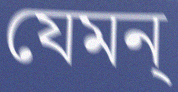
যেমন্